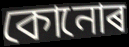
কোনোৰ